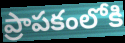
ప్రాపకంలోకి